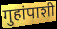
गुहांपाशी